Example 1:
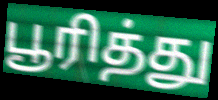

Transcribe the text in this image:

பூரித்து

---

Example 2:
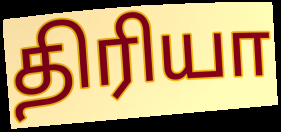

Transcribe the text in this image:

திரியா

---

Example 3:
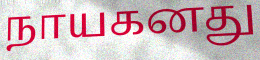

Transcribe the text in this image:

நாயகனது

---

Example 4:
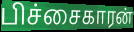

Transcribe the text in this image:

பிச்சைகாரன்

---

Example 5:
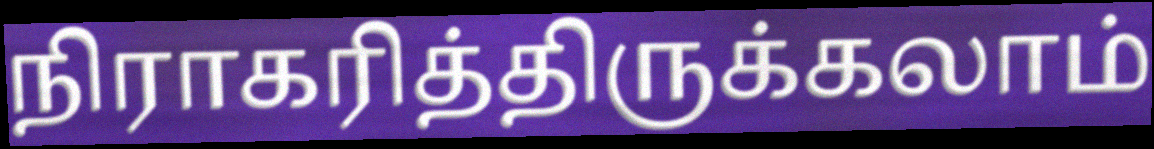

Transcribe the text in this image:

நிராகரித்திருக்கலாம்